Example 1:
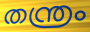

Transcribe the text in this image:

തന്ത്രം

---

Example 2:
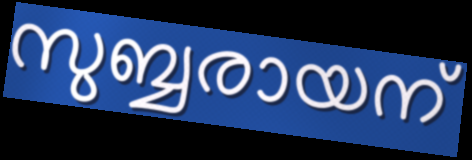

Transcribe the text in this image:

സുബ്ബരായന്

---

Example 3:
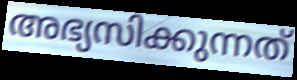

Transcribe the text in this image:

അഭ്യസിക്കുന്നത്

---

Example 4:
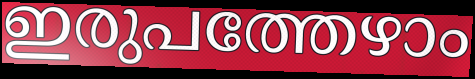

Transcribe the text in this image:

ഇരുപത്തേഴാം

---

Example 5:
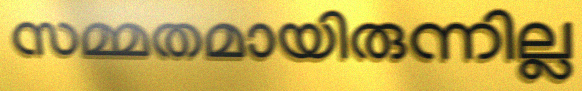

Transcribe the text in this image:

സമ്മതമായിരുന്നില്ല